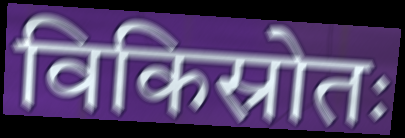
विकिस्रोतः